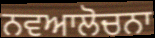
ਨਵਆਲੋਚਨਾ